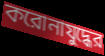
করোনাযুদ্ধের